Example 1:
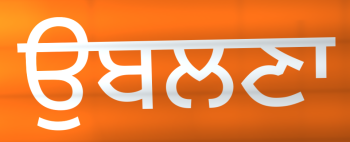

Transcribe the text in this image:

ਉਬਲਣਾ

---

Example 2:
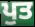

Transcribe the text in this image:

ਪੁਤ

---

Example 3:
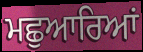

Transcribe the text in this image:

ਮਛੁਆਰਿਆਂ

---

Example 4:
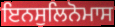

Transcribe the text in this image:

ਇਨਸੁਲਿਨੋਮਾਸ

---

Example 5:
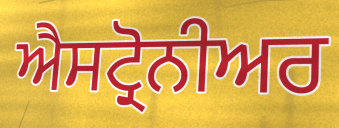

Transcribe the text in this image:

ਐਸਟ੍ਰੋਨੀਅਰ